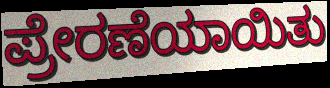
ಪ್ರೇರಣೆಯಾಯಿತು